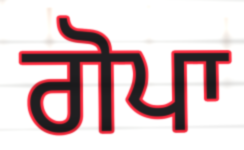
ਗੋਪਾ